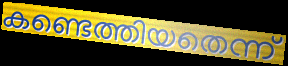
കണ്ടെത്തിയതെന്ന്